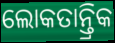
ଲୋକତାନ୍ତ୍ରିକ